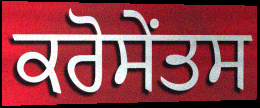
ਕਰੋਸੇਂਤਸ